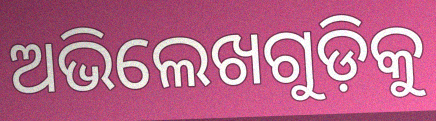
ଅଭିଲେଖଗୁଡ଼ିକୁ